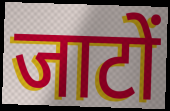
जाटों